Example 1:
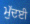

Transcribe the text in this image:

ਮੁੱਦਈ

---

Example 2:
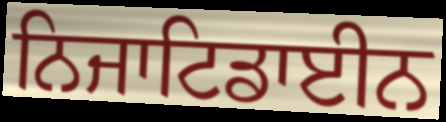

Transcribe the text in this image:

ਨਿਜਾਟਿਡਾਈਨ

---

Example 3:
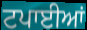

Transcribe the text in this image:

ਟਪਾਈਆਂ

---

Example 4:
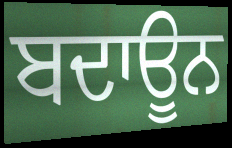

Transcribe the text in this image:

ਬਦਾਊਨ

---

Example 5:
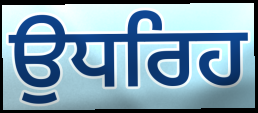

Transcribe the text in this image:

ਉਧਰਿਹ